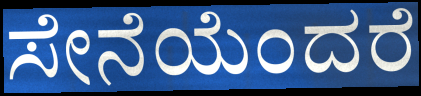
ಸೇನೆಯೆಂದರೆ